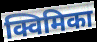
क्विमिका